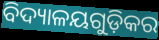
ବିଦ୍ୟାଳୟଗୁଡ଼ିକର